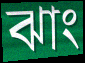
ঝাং